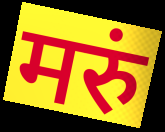
मरुं